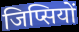
जिप्सियों